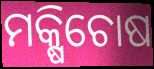
ମକ୍ଷିଚୋଷ